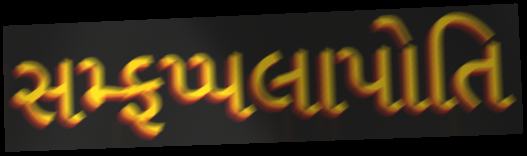
સમ્ફપ્પલાપોતિ